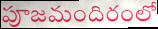
పూజమందిరంలో